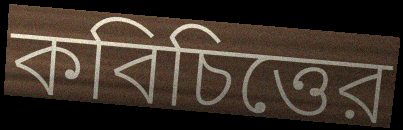
কবিচিত্তের